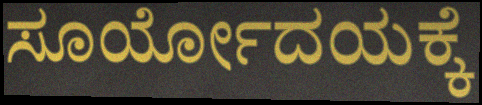
ಸೂರ್ಯೋದಯಕ್ಕೆ